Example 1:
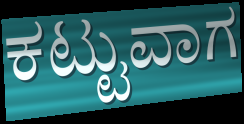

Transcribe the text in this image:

ಕಟ್ಟುವಾಗ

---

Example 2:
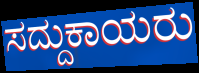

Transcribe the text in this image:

ಸದ್ದುಕಾಯರು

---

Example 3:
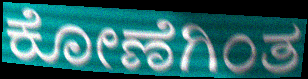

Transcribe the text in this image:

ಕೋಣೆಗಿಂತ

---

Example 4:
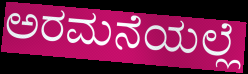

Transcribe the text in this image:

ಅರಮನೆಯಲ್ಲೆ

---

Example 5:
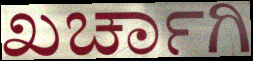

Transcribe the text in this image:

ಖರ್ಚಾಗಿ